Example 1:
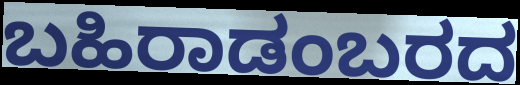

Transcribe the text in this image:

ಬಹಿರಾಡಂಬರದ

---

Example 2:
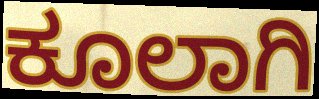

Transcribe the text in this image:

ಕೂಲಾಗಿ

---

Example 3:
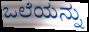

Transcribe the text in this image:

ಒಲೆಯನ್ನು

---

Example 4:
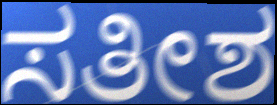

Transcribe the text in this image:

ಸತೀಶ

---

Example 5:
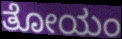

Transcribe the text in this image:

ತೋಯಂ